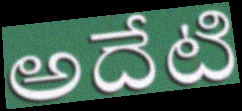
అదేటి